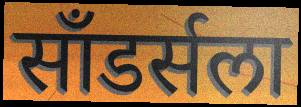
साँडर्सला